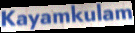
Kayamkulam